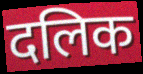
दलिक